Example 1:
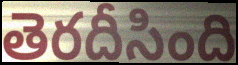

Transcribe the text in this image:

తెరదీసింది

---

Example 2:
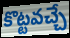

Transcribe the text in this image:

కొట్టవచ్చే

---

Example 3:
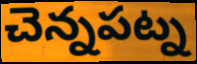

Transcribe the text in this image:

చెన్నపట్న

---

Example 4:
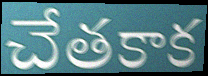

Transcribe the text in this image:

చేతకాక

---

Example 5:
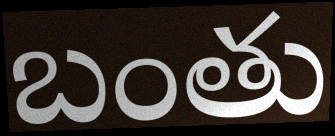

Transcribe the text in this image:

బంతు